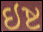
ઇષ્ટ